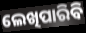
ଲେଖିପାରିବି